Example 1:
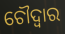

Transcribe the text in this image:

ଚୌଦ୍ଵାର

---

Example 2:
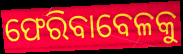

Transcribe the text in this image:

ଫେରିବାବେଳକୁ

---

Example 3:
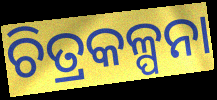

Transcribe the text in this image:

ଚିତ୍ରକଳ୍ପନା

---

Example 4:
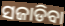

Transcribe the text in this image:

ସଜାଡିବା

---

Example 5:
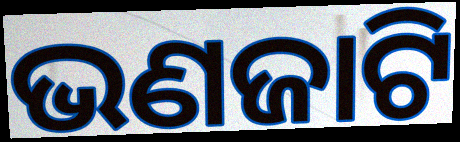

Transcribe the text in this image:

ଭଣଜାଟି